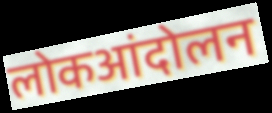
लोकआंदोलन